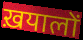
ख़यालों